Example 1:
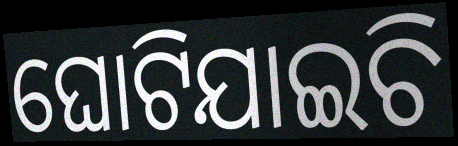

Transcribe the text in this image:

ଘୋଟିଯାଇଚି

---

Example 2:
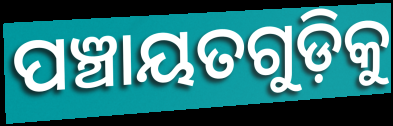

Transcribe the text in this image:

ପଞ୍ଚାୟତଗୁଡ଼ିକୁ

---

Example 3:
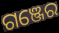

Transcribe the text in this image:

ଗଞ୍ଜେର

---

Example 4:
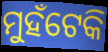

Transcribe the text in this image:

ମୁହଁଟେକି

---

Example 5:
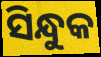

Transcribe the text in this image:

ସିନ୍ଧୁକ